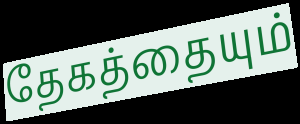
தேகத்தையும்